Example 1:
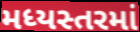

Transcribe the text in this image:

મધ્યસ્તરમાં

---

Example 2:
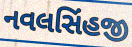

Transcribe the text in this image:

નવલસિંહજી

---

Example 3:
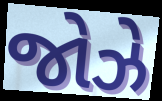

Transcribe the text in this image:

જોઝે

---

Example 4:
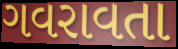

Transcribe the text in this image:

ગવરાવતા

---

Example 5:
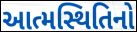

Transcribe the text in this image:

આત્મસ્થિતિનો